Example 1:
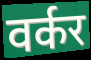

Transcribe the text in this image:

वर्कर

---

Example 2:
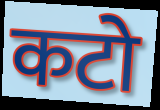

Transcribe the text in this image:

कटो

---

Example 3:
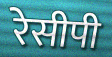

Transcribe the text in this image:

रेसीपी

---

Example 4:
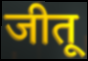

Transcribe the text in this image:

जीतू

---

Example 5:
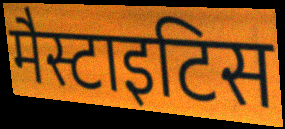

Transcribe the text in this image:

मैस्टाइटिस